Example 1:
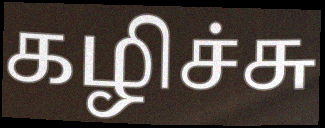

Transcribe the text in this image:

கழிச்சு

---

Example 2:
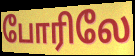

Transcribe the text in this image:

போரிலே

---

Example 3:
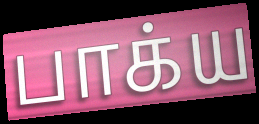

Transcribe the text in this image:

பாக்ய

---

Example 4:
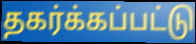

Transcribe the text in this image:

தகர்க்கப்பட்டு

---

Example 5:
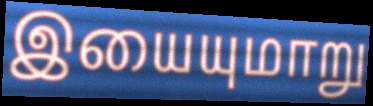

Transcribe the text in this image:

இயையுமாறு